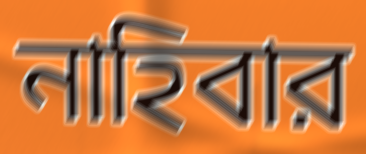
নাহিবার